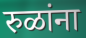
रुळांना